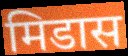
मिडास